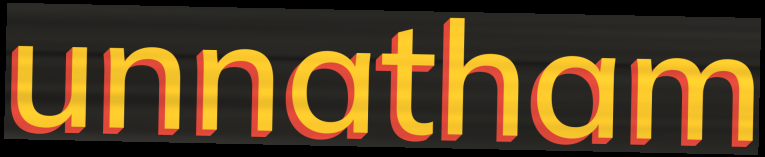
unnatham